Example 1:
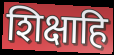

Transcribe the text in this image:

शिक्षाहि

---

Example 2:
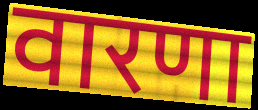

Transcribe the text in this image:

वारणा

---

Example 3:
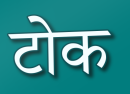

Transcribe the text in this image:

टोक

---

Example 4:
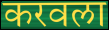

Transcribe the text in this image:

करवला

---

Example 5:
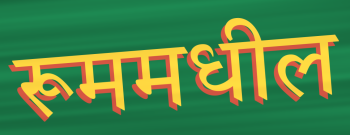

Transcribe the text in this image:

रूममधील